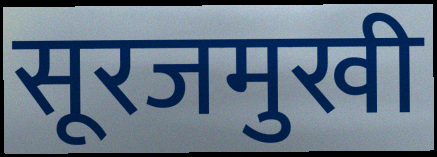
सूरजमुखी